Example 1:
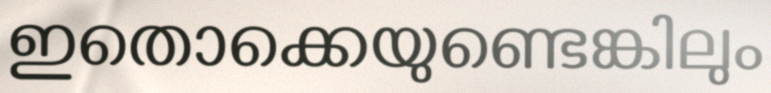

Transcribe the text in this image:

ഇതൊക്കെയുണ്ടെങ്കിലും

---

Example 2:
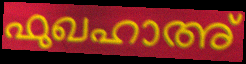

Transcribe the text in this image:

ഫുഖഹാഅ്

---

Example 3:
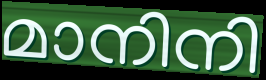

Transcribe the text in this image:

മാനിനി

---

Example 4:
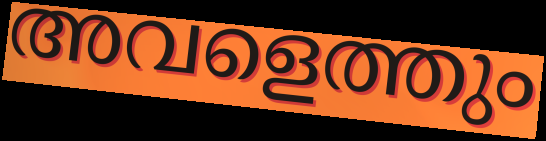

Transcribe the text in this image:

അവളെത്തും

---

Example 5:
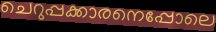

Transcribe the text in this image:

ചെറുപ്പക്കാരനെപ്പോലെ